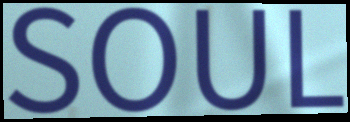
SOUL